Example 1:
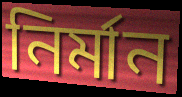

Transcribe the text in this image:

নিৰ্মান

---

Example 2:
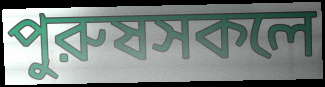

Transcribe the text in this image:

পুৰুষসকলে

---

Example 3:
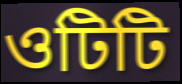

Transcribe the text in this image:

ওটিটি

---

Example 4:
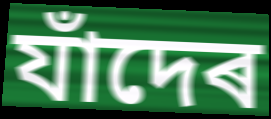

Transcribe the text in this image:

যাঁদেৰ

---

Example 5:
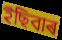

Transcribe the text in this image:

ইছিবাৰ